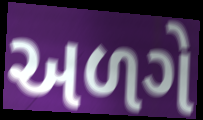
અળગે